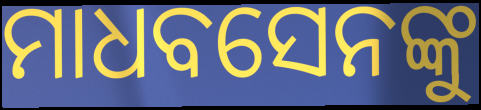
ମାଧବସେନଙ୍କୁ